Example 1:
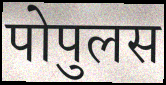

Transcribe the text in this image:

पोपुलस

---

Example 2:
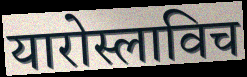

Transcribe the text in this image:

यारोस्लाविच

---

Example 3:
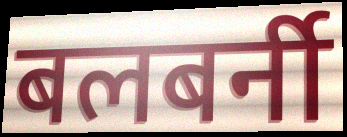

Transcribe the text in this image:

बलबर्नी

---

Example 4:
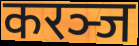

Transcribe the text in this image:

करञ्ज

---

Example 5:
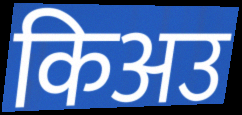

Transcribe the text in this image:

किअउ